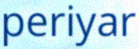
periyar